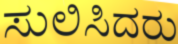
ಸುಲಿಸಿದರು